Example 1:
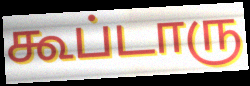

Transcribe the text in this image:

கூப்டாரு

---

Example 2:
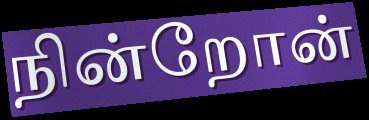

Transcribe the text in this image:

நின்றோன்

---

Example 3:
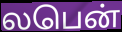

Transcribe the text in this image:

லபென்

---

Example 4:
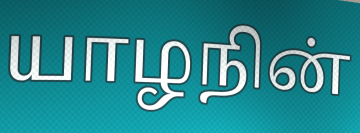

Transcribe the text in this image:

யாழநின்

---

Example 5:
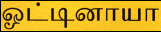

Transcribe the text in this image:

ஓட்டினாயா